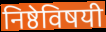
निष्ठेविषयी